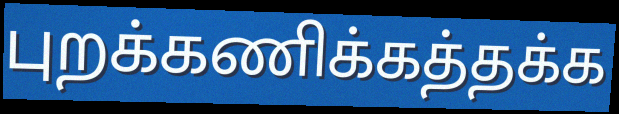
புறக்கணிக்கத்தக்க